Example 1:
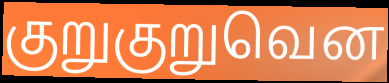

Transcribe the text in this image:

குறுகுறுவென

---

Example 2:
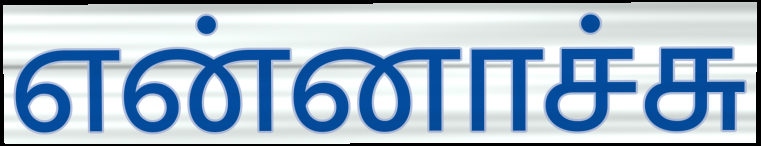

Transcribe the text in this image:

என்னாச்சு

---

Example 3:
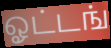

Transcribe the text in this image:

ஓட்டங்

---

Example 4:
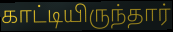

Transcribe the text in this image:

காட்டியிருந்தார்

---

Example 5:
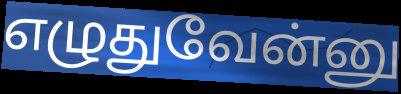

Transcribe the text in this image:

எழுதுவேன்னு